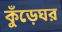
কুঁড়েঘর